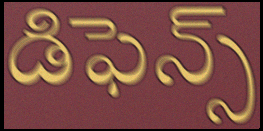
డిఫెన్స్